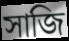
সাজি